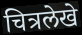
चित्रलेखे